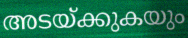
അടയ്ക്കുകയും